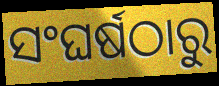
ସଂଘର୍ଷଠାରୁ